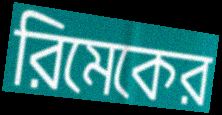
রিমেকের